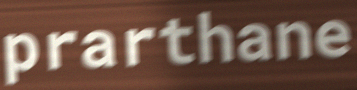
prarthane